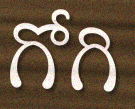
గోగి